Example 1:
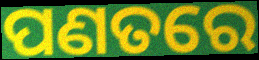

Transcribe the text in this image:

ପଣତରେ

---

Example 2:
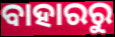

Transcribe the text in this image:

ବାହାରରୁ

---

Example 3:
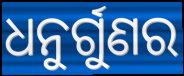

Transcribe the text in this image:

ଧନୁର୍ଗୁଣର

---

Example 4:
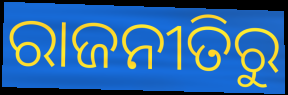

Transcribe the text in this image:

ରାଜନୀତିରୁ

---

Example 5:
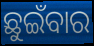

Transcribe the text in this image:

ଛୁଇଁବାର